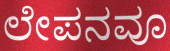
ಲೇಪನವೂ